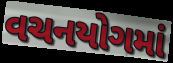
વચનયોગમાં